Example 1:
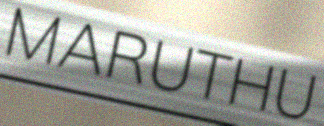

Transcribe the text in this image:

MARUTHU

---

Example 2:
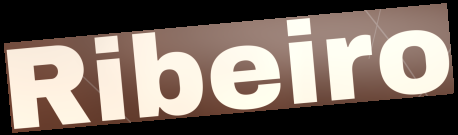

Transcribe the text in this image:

Ribeiro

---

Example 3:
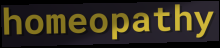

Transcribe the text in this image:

homeopathy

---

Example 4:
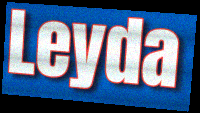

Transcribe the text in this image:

Leyda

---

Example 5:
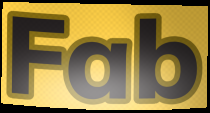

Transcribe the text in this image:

Fab